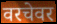
वरचेवर